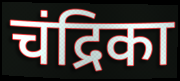
चंद्रिका